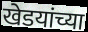
खेडयांच्या